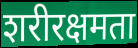
शरीरक्षमता